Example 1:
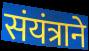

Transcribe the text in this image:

संयंत्राने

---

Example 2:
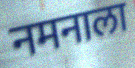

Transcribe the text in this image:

नमनाला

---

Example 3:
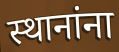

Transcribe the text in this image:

स्थानांना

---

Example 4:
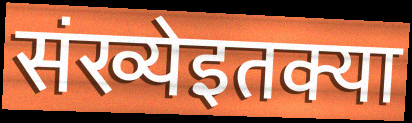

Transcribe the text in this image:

संख्येइतक्या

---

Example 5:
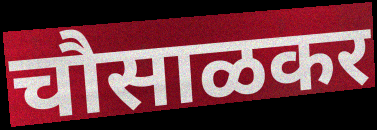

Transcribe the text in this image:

चौसाळकर